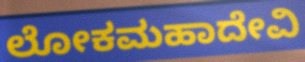
ಲೋಕಮಹಾದೇವಿ